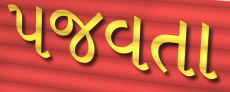
પજવતા